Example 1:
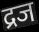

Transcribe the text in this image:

द्रज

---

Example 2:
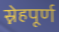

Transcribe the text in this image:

स्नेहपूर्ण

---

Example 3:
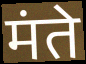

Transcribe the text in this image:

मंते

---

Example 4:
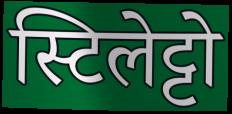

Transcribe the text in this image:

स्टिलेट्टो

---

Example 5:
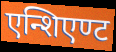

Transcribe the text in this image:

एन्शिएण्ट